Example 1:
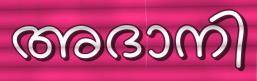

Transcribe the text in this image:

അദാനി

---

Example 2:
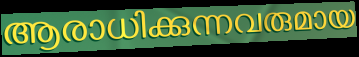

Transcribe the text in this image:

ആരാധിക്കുന്നവരുമായ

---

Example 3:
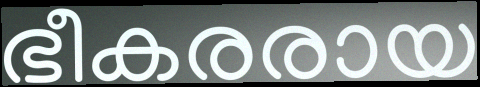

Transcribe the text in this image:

ഭീകരരായ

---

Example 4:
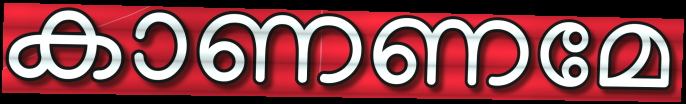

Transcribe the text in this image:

കാണണമേ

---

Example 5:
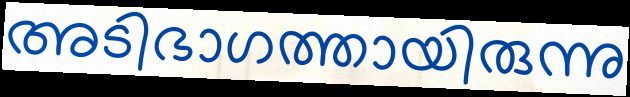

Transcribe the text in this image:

അടിഭാഗത്തായിരുന്നു